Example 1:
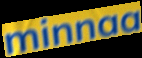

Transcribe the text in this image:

minnaa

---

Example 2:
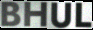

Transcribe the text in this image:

BHUL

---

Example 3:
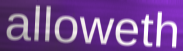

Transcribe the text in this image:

alloweth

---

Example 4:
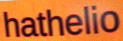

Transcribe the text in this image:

hathelio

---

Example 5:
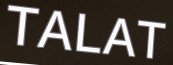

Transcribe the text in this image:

TALAT